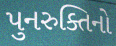
પુનરુક્તિનો